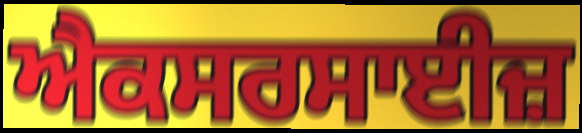
ਐਕਸਰਸਾਈਜ਼